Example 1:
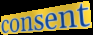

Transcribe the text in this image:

consent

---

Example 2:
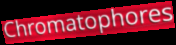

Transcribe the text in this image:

Chromatophores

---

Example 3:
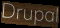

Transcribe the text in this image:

Drupal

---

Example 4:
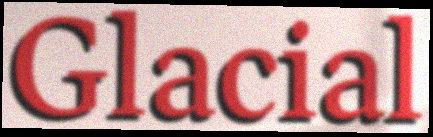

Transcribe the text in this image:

Glacial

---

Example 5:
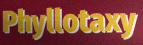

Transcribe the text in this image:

Phyllotaxy